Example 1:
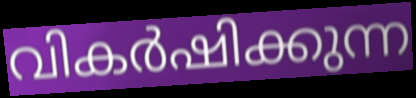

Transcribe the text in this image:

വികർഷിക്കുന്ന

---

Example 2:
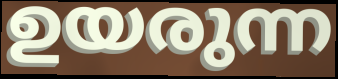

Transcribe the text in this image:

ഉയരുന്ന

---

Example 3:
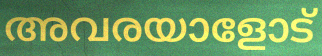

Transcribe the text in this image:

അവരയാളോട്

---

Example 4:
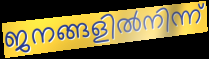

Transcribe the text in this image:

ജനങ്ങളിൽനിന്ന്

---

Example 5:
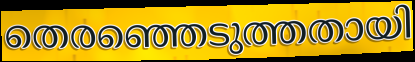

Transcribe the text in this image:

തെരഞ്ഞെടുത്തതായി